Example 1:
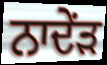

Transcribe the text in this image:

ਨਾਦੇਂੜ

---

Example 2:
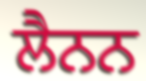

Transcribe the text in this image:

ਲੈਨਨ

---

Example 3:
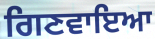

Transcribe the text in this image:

ਗਿਣਵਾਇਆ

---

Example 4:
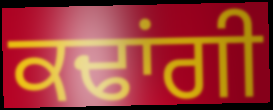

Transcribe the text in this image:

ਕਢਾਂਗੀ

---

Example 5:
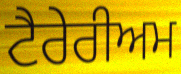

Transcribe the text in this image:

ਟੈਰੇਰੀਅਮ